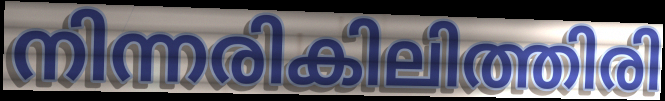
നിന്നരികിലിത്തിരി